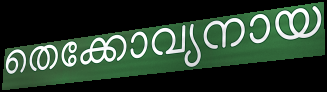
തെക്കോവ്യനായ